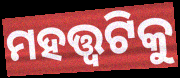
ମହତ୍ତ୍ୱଟିକୁ